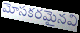
మోసకరమైనవి